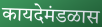
कायदेमंडळास